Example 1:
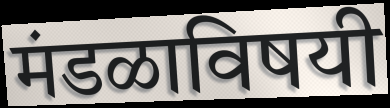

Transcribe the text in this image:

मंडळाविषयी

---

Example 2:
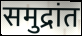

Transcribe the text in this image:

समुद्रांत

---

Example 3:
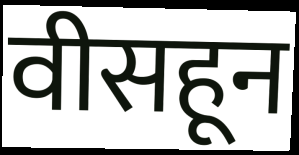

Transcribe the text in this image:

वीसहून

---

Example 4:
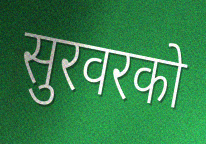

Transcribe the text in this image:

सुरवरको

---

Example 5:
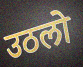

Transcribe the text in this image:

उठलो